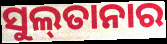
ସୁଲ୍‌ତାନାର